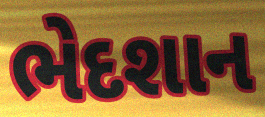
ભેદશાન